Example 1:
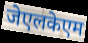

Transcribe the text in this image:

जेएलकेएम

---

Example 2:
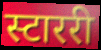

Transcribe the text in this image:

स्टाररी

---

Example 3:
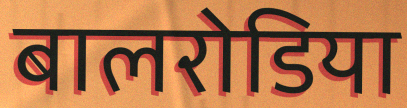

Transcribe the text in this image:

बालरोडिया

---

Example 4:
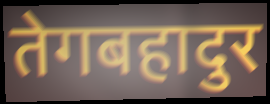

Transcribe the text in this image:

तेगबहादुर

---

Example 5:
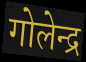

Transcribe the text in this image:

गोलेन्द्र